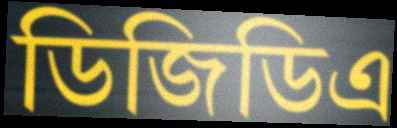
ডিজিডিএ